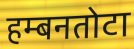
हम्बनतोटा